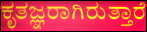
ಕೃತಜ್ಞರಾಗಿರುತ್ತಾರೆ